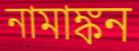
নামাঙ্কন